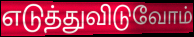
எடுத்துவிடுவோம்